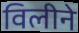
विलीने